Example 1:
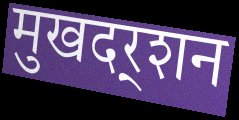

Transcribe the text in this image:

मुखदर्शन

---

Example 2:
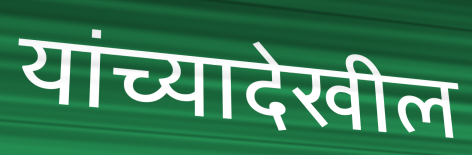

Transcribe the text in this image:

यांच्यादेखील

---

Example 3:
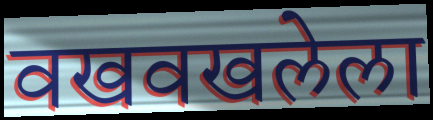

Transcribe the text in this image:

वखवखलेला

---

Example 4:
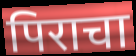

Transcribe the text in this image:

पिराचा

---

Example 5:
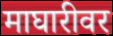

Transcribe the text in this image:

माघारीवर